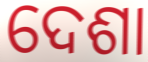
ଦେଶା